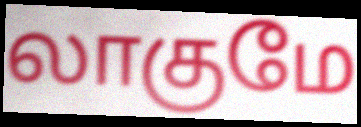
லாகுமே